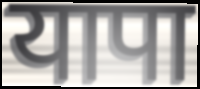
यापा